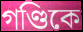
গণ্ডিকে